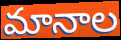
మానాల